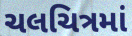
ચલચિત્રમાં